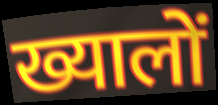
ख्यालों